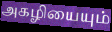
அகழியையும்